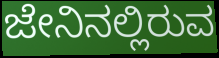
ಜೇನಿನಲ್ಲಿರುವ